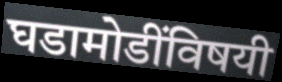
घडामोडींविषयी